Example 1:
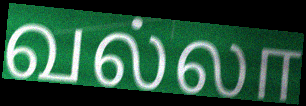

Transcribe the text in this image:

வல்லா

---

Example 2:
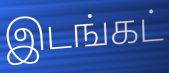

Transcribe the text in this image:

இடங்கட்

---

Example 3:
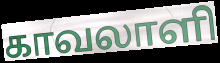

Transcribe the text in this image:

காவலாளி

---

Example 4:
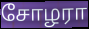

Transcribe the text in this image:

சோழரா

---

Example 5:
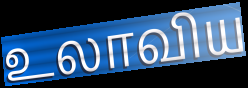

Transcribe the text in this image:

உலாவிய